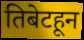
तिबेटहून